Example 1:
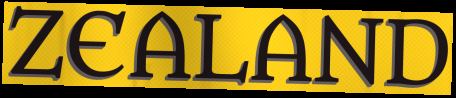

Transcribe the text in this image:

ZEALAND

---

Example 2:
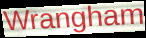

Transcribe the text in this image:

Wrangham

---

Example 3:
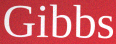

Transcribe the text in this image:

Gibbs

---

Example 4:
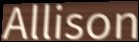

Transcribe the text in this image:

Allison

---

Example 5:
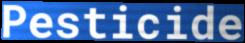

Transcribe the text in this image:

Pesticide